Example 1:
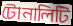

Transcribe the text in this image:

টোনালিটি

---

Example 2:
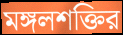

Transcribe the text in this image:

মঙ্গলশক্তির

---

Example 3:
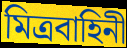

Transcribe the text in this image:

মিত্রবাহিনী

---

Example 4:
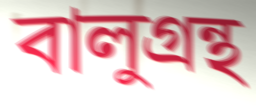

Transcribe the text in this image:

বালুগ্রন্থ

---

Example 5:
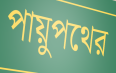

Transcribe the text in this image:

পায়ুপথের